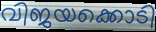
വിജയക്കൊടി